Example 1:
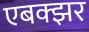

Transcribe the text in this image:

एबक्झर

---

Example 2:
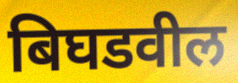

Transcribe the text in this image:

बिघडवील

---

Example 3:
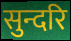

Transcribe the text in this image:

सुन्दरि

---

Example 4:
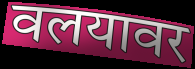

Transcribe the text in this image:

वलयावर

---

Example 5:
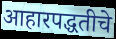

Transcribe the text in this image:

आहारपद्धतीचे